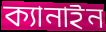
ক্যানাইন